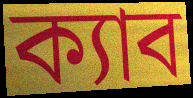
ক্যাব